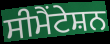
ਸੀਮੈਂਟੇਸ਼ਨ